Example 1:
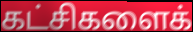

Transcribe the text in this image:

கட்சிகளைக்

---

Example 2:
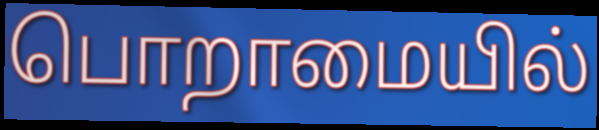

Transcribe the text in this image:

பொறாமையில்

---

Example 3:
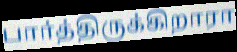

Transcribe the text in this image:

பார்த்திருக்கிறாரா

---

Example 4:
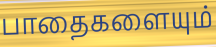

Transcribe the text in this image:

பாதைகளையும்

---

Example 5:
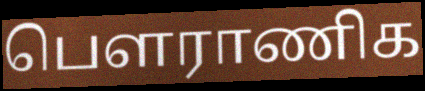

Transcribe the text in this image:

பௌராணிக